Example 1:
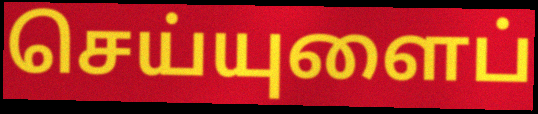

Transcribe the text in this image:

செய்யுளைப்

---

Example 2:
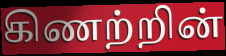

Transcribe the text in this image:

கிணற்றின்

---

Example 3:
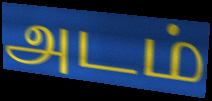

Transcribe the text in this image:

அடம்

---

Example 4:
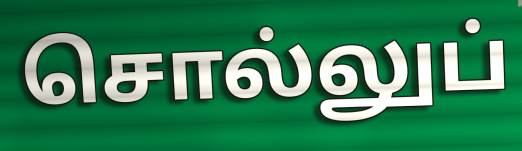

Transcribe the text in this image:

சொல்லுப்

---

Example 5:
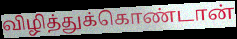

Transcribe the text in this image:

விழித்துக்கொண்டான்